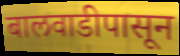
बालवाडीपासून